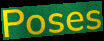
Poses